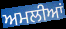
ਅਮਲੀਆਂ